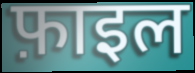
फ़ाइल